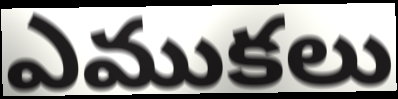
ఎముకలు